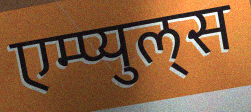
एम्प्युल्स